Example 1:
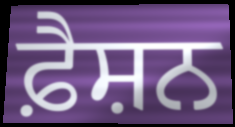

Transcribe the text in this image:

ਫ਼ੈਸ਼ਨ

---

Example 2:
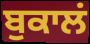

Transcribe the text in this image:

ਬੁਕਾਲਂ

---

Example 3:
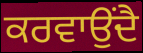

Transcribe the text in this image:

ਕਰਵਾਉਂਦੈ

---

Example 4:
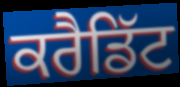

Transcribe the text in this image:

ਕਰੈਡਿੱਟ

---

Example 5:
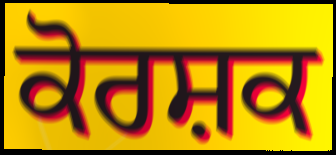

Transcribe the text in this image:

ਕੋਰਸ਼ਕ